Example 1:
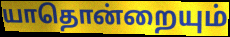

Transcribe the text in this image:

யாதொன்றையும்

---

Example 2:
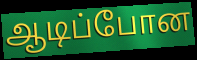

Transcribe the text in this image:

ஆடிப்போன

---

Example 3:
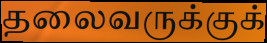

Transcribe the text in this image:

தலைவருக்குக்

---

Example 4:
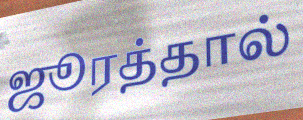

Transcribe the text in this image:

ஜூரத்தால்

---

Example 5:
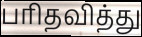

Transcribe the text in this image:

பரிதவித்து